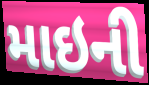
માઇની